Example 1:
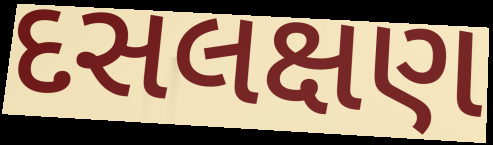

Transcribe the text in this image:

દસલક્ષણ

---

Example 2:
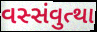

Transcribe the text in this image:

વસ્સંવુત્થા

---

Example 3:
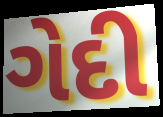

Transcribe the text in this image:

ગેદી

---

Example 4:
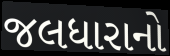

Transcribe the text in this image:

જલધારાનો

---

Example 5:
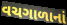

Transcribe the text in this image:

વચગાળાનાં